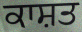
ਕਾਸ਼ਤ